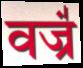
वज्रं॑